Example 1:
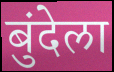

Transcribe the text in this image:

बुंदेला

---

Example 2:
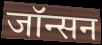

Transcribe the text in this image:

जॉन्सन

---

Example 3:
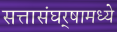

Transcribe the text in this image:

सत्तासंघर्षामध्ये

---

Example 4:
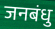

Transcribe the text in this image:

जनबंधु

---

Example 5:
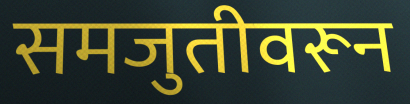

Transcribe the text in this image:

समजुतीवरून